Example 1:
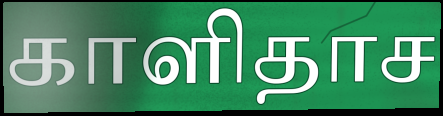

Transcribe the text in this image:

காளிதாச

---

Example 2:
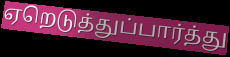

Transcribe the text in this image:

ஏறெடுத்துப்பார்த்து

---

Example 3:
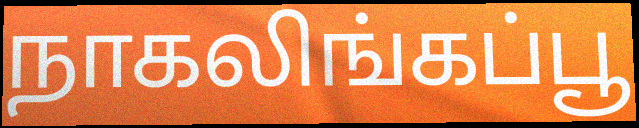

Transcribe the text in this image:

நாகலிங்கப்பூ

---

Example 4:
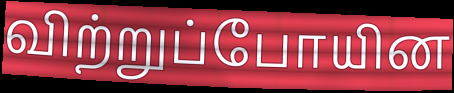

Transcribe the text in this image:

விற்றுப்போயின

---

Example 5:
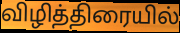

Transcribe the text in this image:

விழித்திரையில்